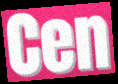
Cen